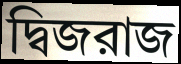
দ্বিজরাজ